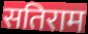
सतिराम